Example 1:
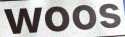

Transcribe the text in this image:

woos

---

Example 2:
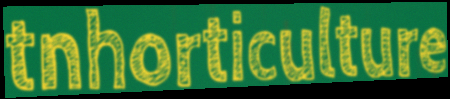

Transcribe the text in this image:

tnhorticulture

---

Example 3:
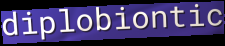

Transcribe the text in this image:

diplobiontic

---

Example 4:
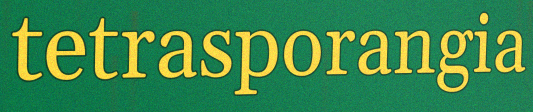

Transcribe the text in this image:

tetrasporangia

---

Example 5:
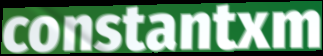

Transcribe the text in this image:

constantxm